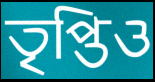
তৃপ্তিও